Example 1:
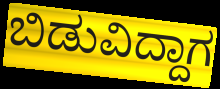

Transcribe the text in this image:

ಬಿಡುವಿದ್ದಾಗ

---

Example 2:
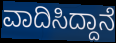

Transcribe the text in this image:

ವಾದಿಸಿದ್ದಾನೆ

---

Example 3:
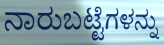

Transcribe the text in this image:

ನಾರುಬಟ್ಟೆಗಳನ್ನು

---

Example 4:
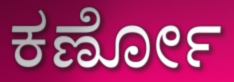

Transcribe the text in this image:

ಕರ್ಣೋ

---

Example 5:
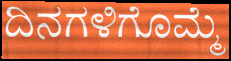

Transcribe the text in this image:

ದಿನಗಳಿಗೊಮ್ಮೆ